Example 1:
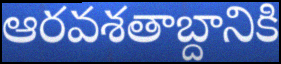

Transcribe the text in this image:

ఆరవశతాబ్దానికి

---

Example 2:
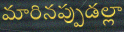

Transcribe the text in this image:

మారినప్పుడల్లా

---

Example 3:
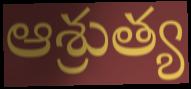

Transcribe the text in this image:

ఆశ్రుత్య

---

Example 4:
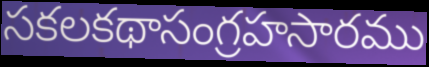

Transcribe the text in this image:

సకలకథాసంగ్రహసారము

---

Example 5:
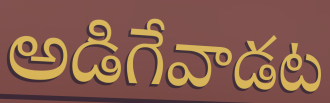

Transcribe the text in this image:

అడిగేవాడట